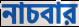
নাচবার